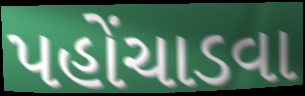
પહોંચાડવા